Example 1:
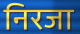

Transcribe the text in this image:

निरजा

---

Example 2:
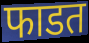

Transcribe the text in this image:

फाडत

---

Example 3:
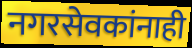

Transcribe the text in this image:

नगरसेवकांनाही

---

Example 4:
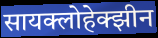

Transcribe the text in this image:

सायक्लोहेक्झीन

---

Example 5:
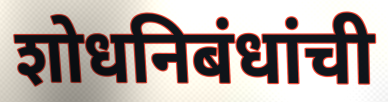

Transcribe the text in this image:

शोधनिबंधांची